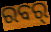
ରବର୍